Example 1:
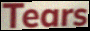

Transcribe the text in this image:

Tears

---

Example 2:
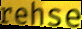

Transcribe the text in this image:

rehse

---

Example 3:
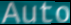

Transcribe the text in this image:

Auto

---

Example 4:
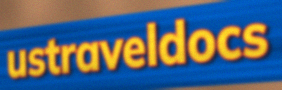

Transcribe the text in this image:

ustraveldocs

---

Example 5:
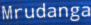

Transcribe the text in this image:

Mrudanga